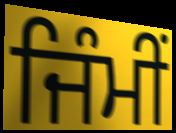
ਜਿੰਮੀਂ